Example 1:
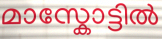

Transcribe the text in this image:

മാസ്കോട്ടിൽ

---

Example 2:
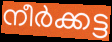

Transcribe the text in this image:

നീർക്കട്ട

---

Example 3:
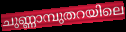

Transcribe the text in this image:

ചുണ്ണാമ്പുതറയിലെ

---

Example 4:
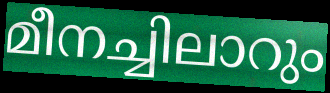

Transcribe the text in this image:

മീനച്ചിലാറും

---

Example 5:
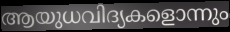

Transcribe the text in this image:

ആയുധവിദ്യകളൊന്നും